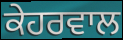
ਕੇਹਰਵਾਲ